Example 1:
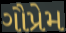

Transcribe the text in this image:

ગૌપ્રેમ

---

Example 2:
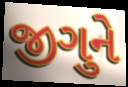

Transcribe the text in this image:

જીગુને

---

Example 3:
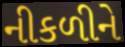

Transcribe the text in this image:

નીકળીને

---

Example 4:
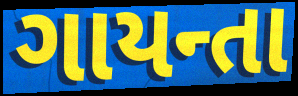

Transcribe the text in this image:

ગાયન્તા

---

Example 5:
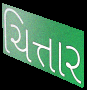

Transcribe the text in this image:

ચિત્તાર